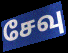
சேவு